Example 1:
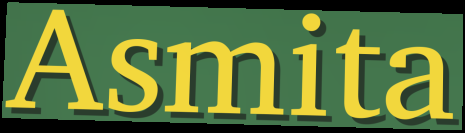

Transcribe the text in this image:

Asmita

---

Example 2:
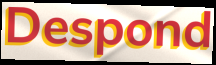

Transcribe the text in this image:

Despond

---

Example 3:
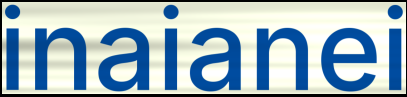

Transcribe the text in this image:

inaianei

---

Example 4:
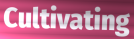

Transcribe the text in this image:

Cultivating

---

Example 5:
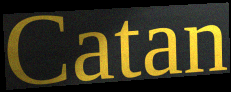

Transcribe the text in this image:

Catan